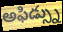
అఫిడ్స్ను